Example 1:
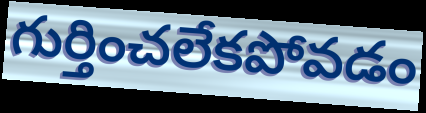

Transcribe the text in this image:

గుర్తించలేకపోవడం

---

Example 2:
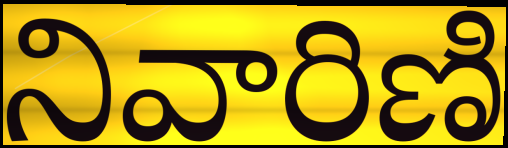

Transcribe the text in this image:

నివారిణి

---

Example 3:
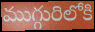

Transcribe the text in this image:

ముగ్గురిలోకి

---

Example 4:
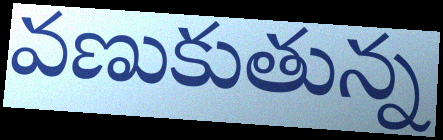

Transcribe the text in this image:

వణుకుతున్న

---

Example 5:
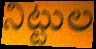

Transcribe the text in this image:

నిట్టుల